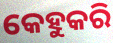
କେହୁକରି